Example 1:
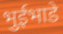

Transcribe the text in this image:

भुईभाडे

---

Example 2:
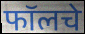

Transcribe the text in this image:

फॉलचे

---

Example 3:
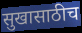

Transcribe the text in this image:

सुखासाठीच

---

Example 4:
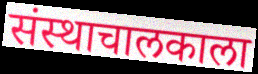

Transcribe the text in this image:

संस्थाचालकाला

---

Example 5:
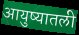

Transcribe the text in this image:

आयुष्यातली